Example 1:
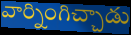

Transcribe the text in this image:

వార్నింగిచ్చాడు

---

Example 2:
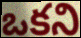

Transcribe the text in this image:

ఒకని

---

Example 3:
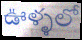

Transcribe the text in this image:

ఊళ్ళలో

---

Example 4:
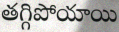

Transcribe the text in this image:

తగ్గిపోయాయి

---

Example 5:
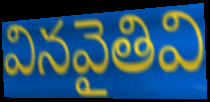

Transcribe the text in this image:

వినవైతివి